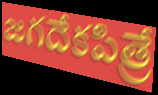
జగదేకపిత్రే